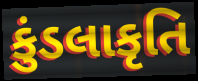
કુંડલાકૃતિ